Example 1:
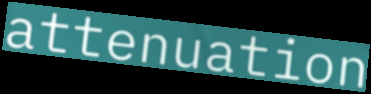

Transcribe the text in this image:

attenuation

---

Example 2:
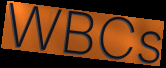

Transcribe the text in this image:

WBCs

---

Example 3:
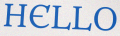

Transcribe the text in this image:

HELLO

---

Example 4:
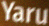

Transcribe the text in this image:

Yaru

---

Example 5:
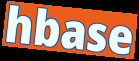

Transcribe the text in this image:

hbase